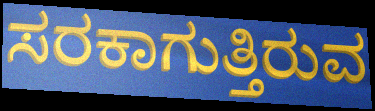
ಸರಕಾಗುತ್ತಿರುವ